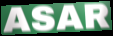
ASAR